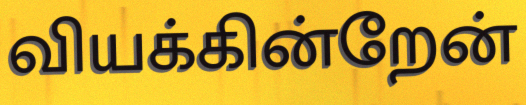
வியக்கின்றேன்